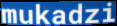
mukadzi